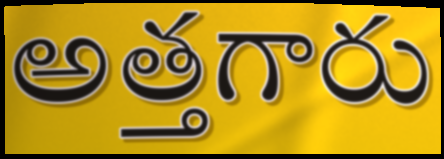
అత్తగారు